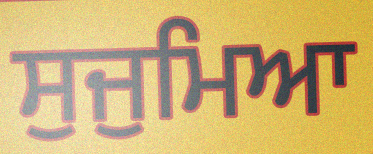
ਸੁਜੁਮਿਆ